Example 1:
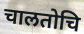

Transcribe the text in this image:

चालतोचि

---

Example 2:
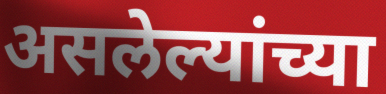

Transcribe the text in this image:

असलेल्यांच्या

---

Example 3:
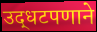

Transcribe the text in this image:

उद्धटपणाने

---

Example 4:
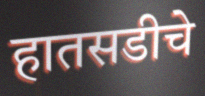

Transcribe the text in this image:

हातसडीचे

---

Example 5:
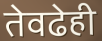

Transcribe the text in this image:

तेवढेही